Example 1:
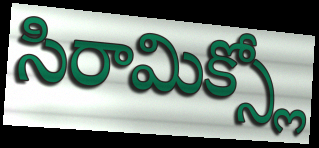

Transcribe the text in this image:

సిరామిక్స్లో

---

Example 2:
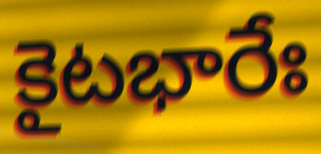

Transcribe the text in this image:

కైటభారేః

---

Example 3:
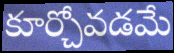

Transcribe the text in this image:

కూర్చోవడమే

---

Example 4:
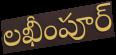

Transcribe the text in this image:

లఖీంపూర్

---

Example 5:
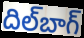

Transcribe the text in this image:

దిల్‌బాగ్